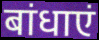
बांधाएं